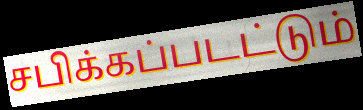
சபிக்கப்படட்டும்